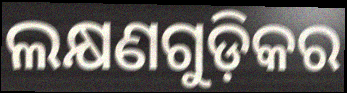
ଲକ୍ଷଣଗୁଡ଼ିକର